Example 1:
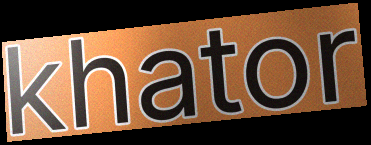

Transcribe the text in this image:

khator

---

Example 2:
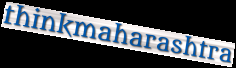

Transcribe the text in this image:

thinkmaharashtra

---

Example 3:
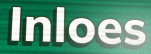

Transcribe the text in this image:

Inloes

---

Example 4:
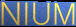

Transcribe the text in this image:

NIUM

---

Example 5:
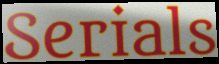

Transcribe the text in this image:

Serials